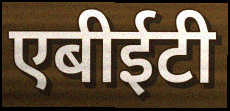
एबीईटी